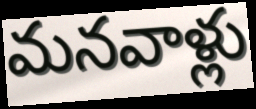
మనవాళ్లు